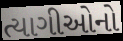
ત્યાગીઓનો